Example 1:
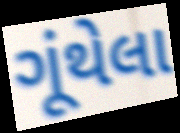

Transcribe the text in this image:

ગૂંથેલા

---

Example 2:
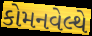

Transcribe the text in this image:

કોમનવેલ્થે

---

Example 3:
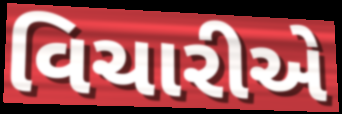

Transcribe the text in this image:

વિચારીએ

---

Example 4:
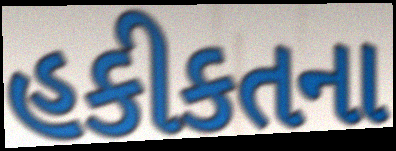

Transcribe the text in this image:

હકીકતના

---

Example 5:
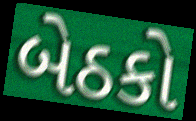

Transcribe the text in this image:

બેઠકો